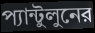
প্যান্টুলুনের